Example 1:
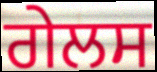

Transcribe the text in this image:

ਗੇਲਸ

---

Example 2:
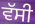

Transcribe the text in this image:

ਵੱਸੀ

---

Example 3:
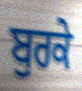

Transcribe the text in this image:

ਬੁਰਕੇ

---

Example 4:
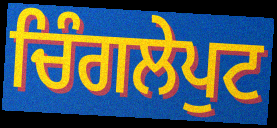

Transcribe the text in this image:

ਚਿੰਗਲੇਪੁਟ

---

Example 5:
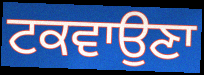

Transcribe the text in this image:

ਟਕਵਾਉਣਾ